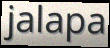
jalapa